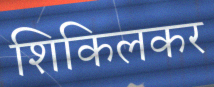
शिकिलकर